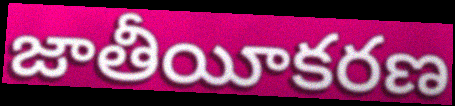
జాతీయీకరణ